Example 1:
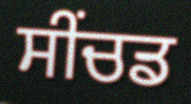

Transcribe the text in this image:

ਸੀਂਚਡ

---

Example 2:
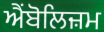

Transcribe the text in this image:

ਐਂਬੋਲਿਜ਼ਮ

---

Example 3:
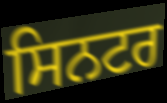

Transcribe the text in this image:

ਸਿਨਟਰ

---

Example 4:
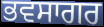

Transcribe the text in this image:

ਭਵਸਾਗਰ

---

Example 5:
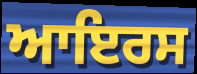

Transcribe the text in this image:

ਆਇਰਸ